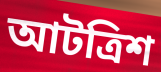
আটত্রিশ